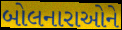
બોલનારાઓને